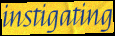
instigating